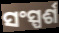
ସଂସ୍ପର୍ଶ